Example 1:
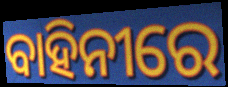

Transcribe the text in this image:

ବାହିନୀରେ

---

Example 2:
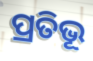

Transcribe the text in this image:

ପ୍ରତିଭୂ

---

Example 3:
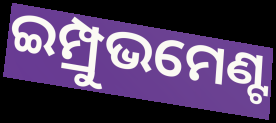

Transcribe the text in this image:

ଇମ୍ପ୍ରୁଭମେଣ୍ଟ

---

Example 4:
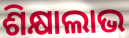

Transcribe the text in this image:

ଶିକ୍ଷାଲାଭ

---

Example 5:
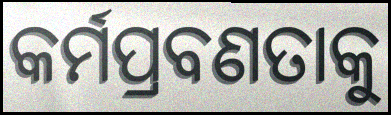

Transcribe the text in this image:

କର୍ମପ୍ରବଣତାକୁ